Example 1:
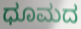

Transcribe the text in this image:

ಧೂಮದ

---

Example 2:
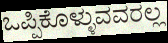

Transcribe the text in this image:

ಒಪ್ಪಿಕೊಳ್ಳುವವರಲ್ಲ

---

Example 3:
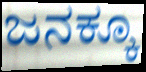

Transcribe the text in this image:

ಜನಕ್ಕೂ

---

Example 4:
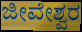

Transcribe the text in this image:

ಜೀವೇಶ್ವರ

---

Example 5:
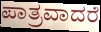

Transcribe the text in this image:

ಪಾತ್ರವಾದರೆ